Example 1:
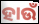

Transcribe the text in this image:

ହାଉଁ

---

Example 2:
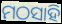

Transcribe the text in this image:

ମଠସାହି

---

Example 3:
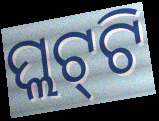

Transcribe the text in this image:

ପ୍ଲଟ୍‌ଟି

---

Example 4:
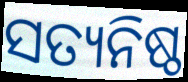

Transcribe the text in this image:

ସତ୍ୟନିଷ୍ଠ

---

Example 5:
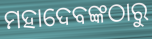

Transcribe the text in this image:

ମହାଦେବଙ୍କଠାରୁ